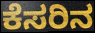
ಕೆಸರಿನ